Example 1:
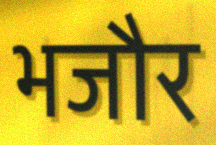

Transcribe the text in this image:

भजौर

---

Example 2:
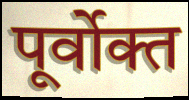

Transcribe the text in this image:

पूर्वोक्‍त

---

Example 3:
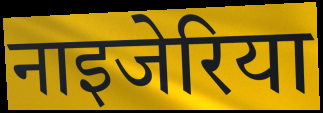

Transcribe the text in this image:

नाइजेरिया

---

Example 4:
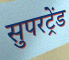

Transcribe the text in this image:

सुपरट्रेंड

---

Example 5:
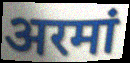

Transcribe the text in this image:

अरमां